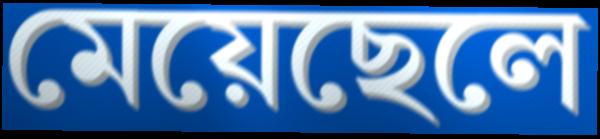
মেয়েছেলে